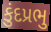
કુંદપ્રભુ